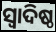
ସ୍ୱାଦିଷ୍ଠ